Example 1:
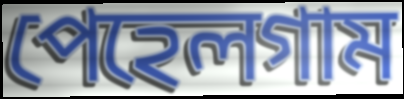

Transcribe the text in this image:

পেহেলগাম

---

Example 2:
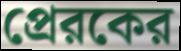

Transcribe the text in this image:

প্রেরকের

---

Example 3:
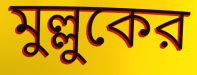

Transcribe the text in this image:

মুল্লুকের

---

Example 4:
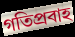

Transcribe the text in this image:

গতিপ্রবাহ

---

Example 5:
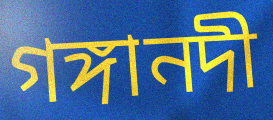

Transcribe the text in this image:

গঙ্গানদী